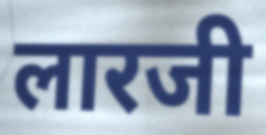
लारजी